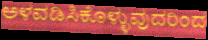
ಅಳವಡಿಸಿಕೊಳ್ಳುವುದರಿಂದ